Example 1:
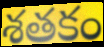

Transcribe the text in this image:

శతకం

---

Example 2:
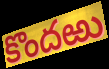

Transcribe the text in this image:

కొందఱు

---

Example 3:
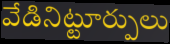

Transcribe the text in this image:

వేడినిట్టూర్పులు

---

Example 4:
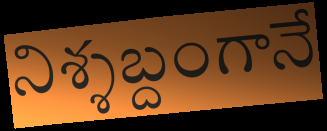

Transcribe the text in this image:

నిశ్శబ్దంగానే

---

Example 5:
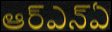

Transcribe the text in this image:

ఆర్ఎన్ఏ